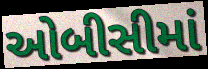
ઓબીસીમાં